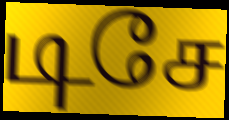
டிசே